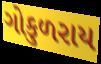
ગોકુળરાય